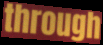
through